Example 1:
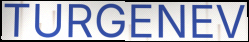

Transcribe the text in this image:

TURGENEV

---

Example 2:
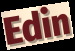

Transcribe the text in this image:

Edin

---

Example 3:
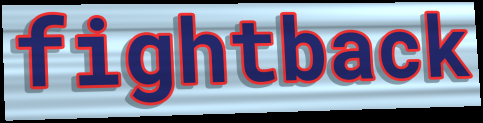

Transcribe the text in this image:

fightback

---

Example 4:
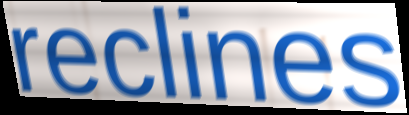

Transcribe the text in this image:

reclines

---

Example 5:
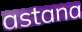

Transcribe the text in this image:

astana